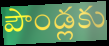
పౌండ్లకు